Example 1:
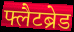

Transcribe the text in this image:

फ्लैटब्रेड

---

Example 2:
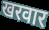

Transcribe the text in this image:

खरवार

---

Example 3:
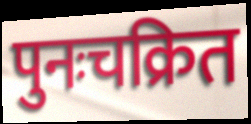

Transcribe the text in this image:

पुनःचक्रित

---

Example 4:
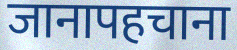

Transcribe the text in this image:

जानापहचाना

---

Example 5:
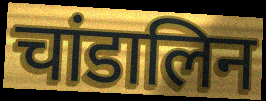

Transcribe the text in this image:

चांडालिन